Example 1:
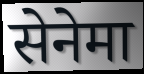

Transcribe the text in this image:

सेनेमा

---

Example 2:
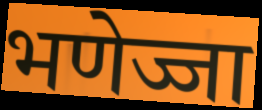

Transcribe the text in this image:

भणेज्जा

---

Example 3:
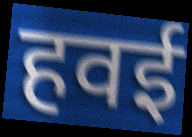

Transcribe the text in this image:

हवई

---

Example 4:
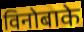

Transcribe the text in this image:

विनोबाके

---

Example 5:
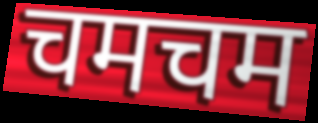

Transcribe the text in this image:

चमचम